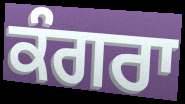
ਕੰਗਰਾ